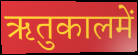
ऋतुकालमें